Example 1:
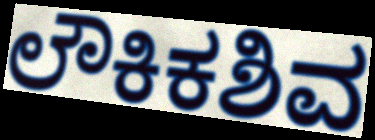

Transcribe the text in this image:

ಲೌಕಿಕಶಿವ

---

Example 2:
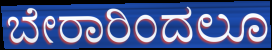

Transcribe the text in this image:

ಬೇರಾರಿಂದಲೂ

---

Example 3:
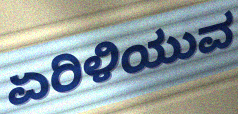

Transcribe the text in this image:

ಏರಿಳಿಯುವ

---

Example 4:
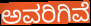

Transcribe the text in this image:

ಅವರಿಗಿವೆ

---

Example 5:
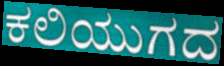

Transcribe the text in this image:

ಕಲಿಯುಗದ